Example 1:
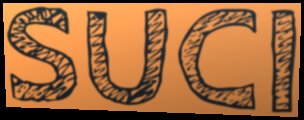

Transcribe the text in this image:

SUCI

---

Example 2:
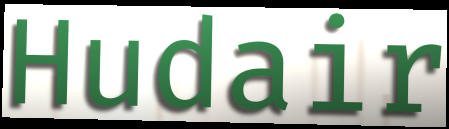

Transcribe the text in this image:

Hudair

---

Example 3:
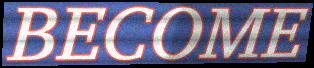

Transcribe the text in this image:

BECOME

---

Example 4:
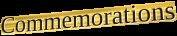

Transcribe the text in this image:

Commemorations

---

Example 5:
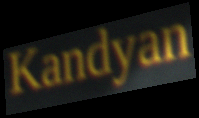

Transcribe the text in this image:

Kandyan